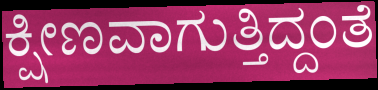
ಕ್ಷೀಣವಾಗುತ್ತಿದ್ದಂತೆ